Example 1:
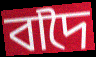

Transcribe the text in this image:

বাদৈ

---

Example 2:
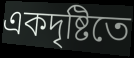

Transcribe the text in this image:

একদৃষ্টিতে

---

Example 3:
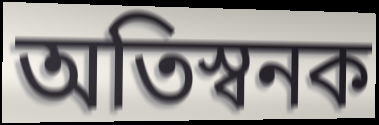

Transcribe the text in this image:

অতিস্বনক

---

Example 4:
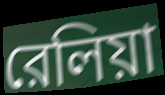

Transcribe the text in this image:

রেলিয়া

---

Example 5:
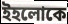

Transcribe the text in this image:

ইহলোকে